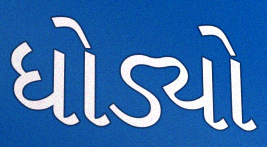
ધોડ્યો